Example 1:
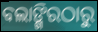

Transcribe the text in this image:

ବଲାଙ୍ଗିରଠାରୁ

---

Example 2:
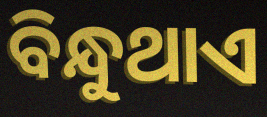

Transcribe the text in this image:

ବିନ୍ଧୁଥାଏ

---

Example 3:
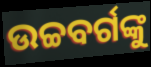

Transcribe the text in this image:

ଉଚ୍ଚବର୍ଗଙ୍କୁ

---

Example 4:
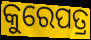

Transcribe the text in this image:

କୁରେପତ୍ର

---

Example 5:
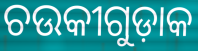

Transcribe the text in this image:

ଚଉକୀଗୁଡ଼ାକ